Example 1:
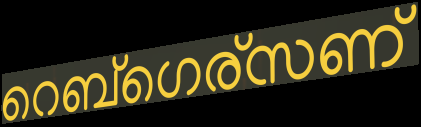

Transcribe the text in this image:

റെബ്ഗെര്സണ്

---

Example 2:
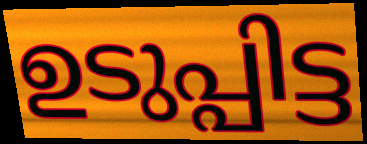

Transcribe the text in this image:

ഉടുപ്പിട്ട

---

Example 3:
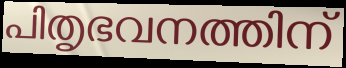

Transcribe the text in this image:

പിതൃഭവനത്തിന്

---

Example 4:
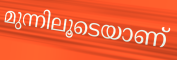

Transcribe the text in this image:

മുന്നിലൂടെയാണ്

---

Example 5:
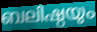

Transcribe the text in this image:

ബലിഷ്ഠയും